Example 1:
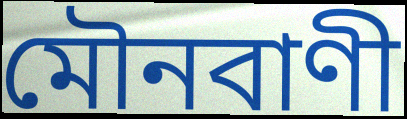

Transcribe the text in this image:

মৌনবাণী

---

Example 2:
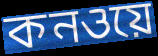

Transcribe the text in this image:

কনওয়ে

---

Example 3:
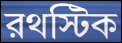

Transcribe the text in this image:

রথস্টিক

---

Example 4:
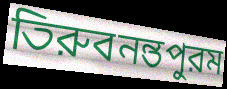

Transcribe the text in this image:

তিরুবনন্তপুরম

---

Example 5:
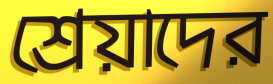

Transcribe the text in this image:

শ্রেয়াদের